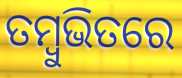
ତମ୍ବୁଭିତରେ